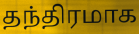
தந்திரமாக